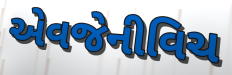
એવજેનીવિચ